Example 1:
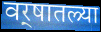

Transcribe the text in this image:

वर्षातल्या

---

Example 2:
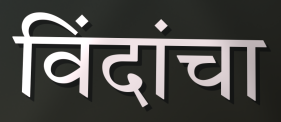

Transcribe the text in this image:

विंदांचा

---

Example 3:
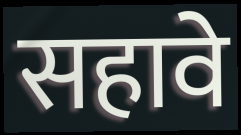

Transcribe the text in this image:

सहावे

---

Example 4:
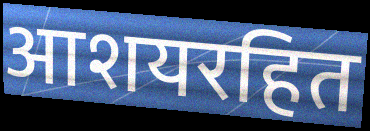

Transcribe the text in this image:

आशयरहित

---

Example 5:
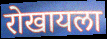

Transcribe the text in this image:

रोखायला